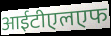
आईटीएलएफ